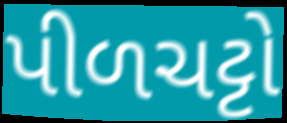
પીળચટ્ટો